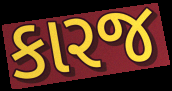
કારજ